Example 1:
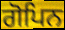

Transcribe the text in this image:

ਗੋਪਿਨ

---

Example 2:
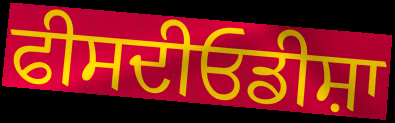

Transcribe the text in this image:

ਫੀਸਦੀਓਡੀਸ਼ਾ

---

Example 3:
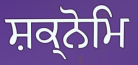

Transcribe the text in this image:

ਸ਼ਕ੍ਨੋਮਿ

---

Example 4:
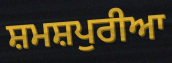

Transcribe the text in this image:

ਸ਼ਮਸ਼ਪੁਰੀਆ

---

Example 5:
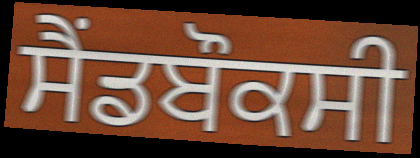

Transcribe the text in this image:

ਸੈਂਡਬੌਕਸੀ